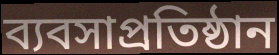
ব্যবসাপ্রতিষ্ঠান